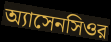
অ্যাসেনসিওর